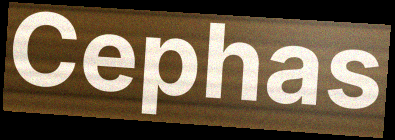
Cephas